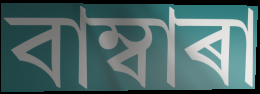
বাম্বাৰা